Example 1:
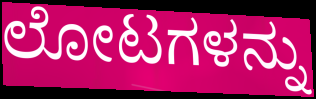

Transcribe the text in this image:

ಲೋಟಗಳನ್ನು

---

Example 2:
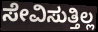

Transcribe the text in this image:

ಸೇವಿಸುತ್ತಿಲ್ಲ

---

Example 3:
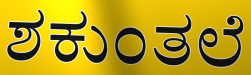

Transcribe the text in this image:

ಶಕುಂತಲೆ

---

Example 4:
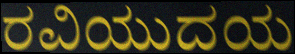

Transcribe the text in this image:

ರವಿಯುದಯ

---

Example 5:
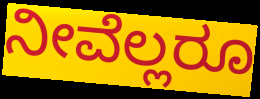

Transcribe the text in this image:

ನೀವೆಲ್ಲರೂ